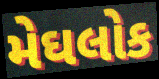
મેઘલોક